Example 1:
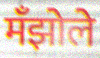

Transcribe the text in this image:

मँझोले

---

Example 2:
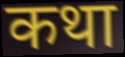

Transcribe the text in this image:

कथा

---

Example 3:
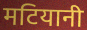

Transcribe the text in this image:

मटियानी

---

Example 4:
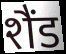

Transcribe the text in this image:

शैंड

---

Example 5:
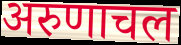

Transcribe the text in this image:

अरुणाचल